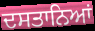
ਦਸਤਾਨਿਆਂ